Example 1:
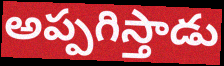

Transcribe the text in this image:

అప్పగిస్తాడు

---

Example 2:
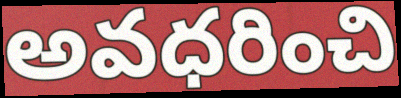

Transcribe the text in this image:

అవధరించి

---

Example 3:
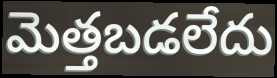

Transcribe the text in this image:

మెత్తబడలేదు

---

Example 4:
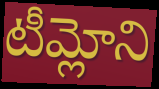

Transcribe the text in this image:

టీమ్లోని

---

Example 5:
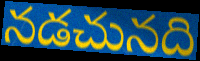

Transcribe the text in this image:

నడచునది